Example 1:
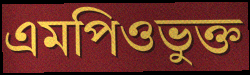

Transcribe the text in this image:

এমপিওভুক্ত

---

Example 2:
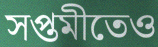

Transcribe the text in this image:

সপ্তমীতেও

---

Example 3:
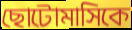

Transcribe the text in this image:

ছোটোমাসিকে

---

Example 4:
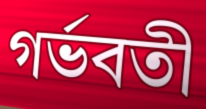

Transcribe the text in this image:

গর্ভবতী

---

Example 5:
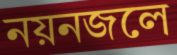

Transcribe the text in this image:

নয়নজলে